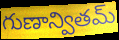
గుణాన్వితమ్